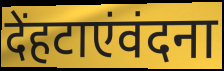
देंहटाएंवंदना